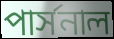
পার্সনাল